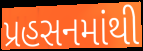
પ્રહસનમાંથી